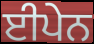
ਈਪੇਨ